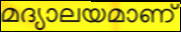
മദ്യാലയമാണ്